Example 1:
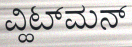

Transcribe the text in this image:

ವ್ಹಿಟ್‌ಮನ್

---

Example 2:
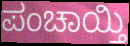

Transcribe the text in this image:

ಪಂಚಾಯ್ತಿ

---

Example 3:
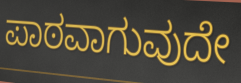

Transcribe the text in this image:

ಪಾಠವಾಗುವುದೇ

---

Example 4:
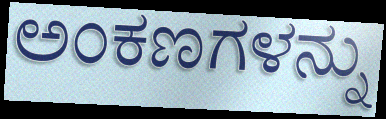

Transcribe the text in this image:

ಅಂಕಣಗಳನ್ನು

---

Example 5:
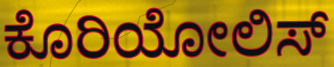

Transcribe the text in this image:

ಕೊರಿಯೋಲಿಸ್